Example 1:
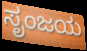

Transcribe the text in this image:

ಸೃಂಜಯ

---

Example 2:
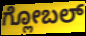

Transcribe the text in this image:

ಗ್ಲೋಬಲ್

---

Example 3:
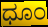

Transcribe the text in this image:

ಧೂಂ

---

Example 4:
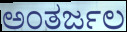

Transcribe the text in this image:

ಅಂತರ್ಜಲ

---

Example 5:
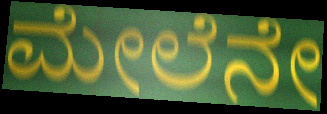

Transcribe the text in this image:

ಮೇಲೆನೇ